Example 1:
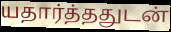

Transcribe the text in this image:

யதார்த்ததுடன்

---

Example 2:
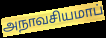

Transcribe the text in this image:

அநாவசியமாப்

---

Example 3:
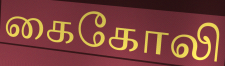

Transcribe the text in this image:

கைகோலி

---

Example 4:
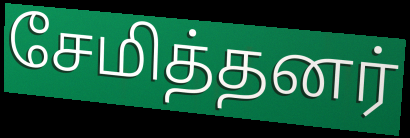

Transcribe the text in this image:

சேமித்தனர்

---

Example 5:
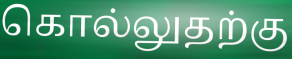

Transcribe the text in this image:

கொல்லுதற்கு